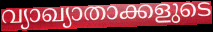
വ്യാഖ്യാതാക്കളുടെ